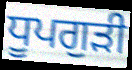
ਧੂਪਗੁੜੀ